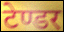
टेण्‍डर